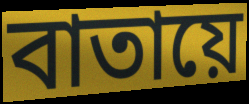
বাতায়ে